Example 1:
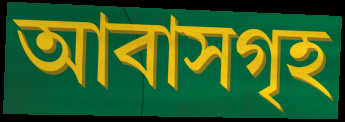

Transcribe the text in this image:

আবাসগৃহ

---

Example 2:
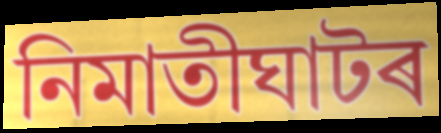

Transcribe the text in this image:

নিমাতীঘাটৰ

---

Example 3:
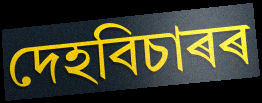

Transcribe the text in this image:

দেহবিচাৰৰ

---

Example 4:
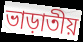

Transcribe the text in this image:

ভাড়াতীয়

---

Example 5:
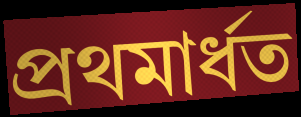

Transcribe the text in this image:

প্ৰথমাৰ্ধত